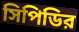
সিপিডির